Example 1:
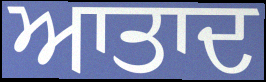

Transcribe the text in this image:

ਆਤਾਦ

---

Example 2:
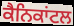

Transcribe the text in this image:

ਕੈਨਿਕਾਂਟਲ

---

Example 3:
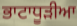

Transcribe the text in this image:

ਭਾਟਾਧੂੜੀਆ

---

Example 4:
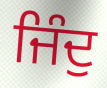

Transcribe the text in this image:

ਜਿੰਦੁ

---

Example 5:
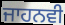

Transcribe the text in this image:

ਜਾਹਨਵੀ